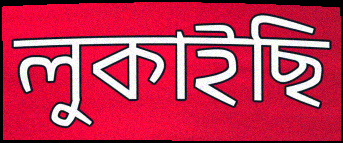
লুকাইছি